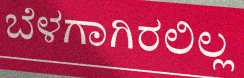
ಬೆಳಗಾಗಿರಲಿಲ್ಲ